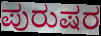
ಪುರುಷರ